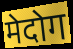
मेदोग